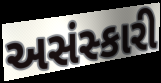
અસંસ્કારી